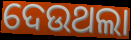
ଦେଉଥଲା